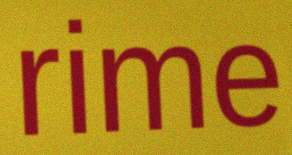
rime